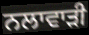
ਨਲਾਵਾੜੀ